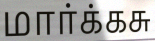
மார்க்கசு